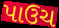
પાઉચ